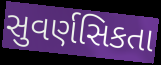
સુવર્ણસિકતા